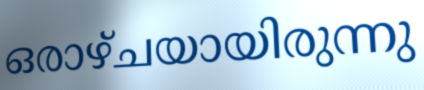
ഒരാഴ്ചയായിരുന്നു